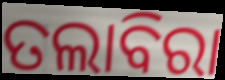
ତଲାବିରା